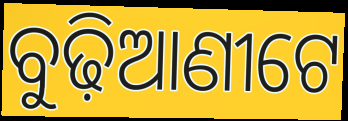
ବୁଢ଼ିଆଣୀଟେ